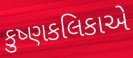
કુષ્ણકલિકાએ